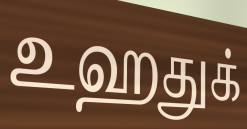
உஹதுக்